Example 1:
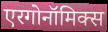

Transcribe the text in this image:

एरगोनॉमिक्स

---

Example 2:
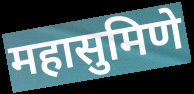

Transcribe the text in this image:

महासुमिणे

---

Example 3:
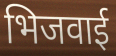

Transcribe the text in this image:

भिजवाई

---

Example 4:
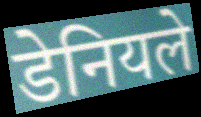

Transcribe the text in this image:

डेनियले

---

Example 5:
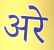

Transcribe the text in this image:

अरे